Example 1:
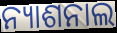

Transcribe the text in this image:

ନ୍ୟାଶନାଲ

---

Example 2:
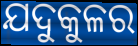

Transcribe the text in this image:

ଯଦୁକୁଳର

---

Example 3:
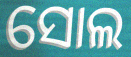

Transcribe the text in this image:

ସୋଲ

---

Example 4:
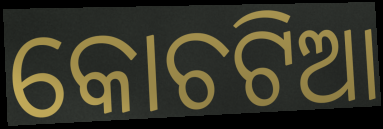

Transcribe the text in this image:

କୋଚଟିଆ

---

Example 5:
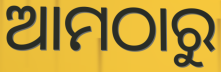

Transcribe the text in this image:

ଆମଠାରୁ